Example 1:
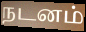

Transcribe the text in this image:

நடனம்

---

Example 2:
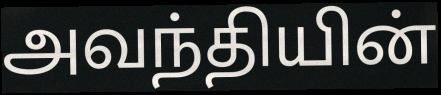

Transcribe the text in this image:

அவந்தியின்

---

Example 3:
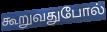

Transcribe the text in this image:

கூறுவதுபோல்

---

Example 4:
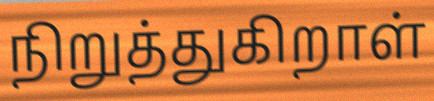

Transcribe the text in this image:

நிறுத்துகிறாள்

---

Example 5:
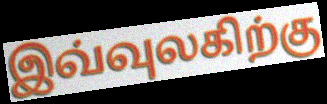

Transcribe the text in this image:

இவ்வுலகிற்கு